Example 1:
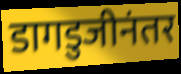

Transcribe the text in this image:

डागडुजीनंतर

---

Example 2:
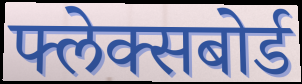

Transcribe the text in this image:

फ्लेक्सबोर्ड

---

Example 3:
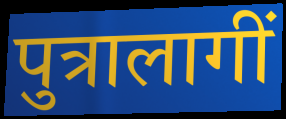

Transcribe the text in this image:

पुत्रालागीं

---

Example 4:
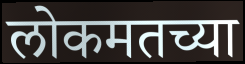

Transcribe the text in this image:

लोकमतच्या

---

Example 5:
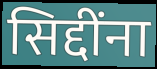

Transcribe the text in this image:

सिद्दींना